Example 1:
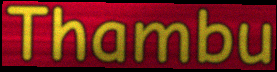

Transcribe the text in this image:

Thambu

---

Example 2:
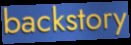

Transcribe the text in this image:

backstory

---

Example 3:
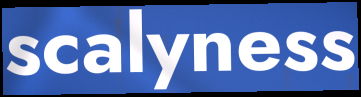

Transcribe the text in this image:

scalyness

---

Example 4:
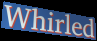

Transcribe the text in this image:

Whirled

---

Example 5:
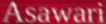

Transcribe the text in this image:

Asawari